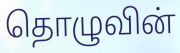
தொழுவின்